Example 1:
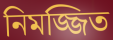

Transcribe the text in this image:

নিমজ্জিত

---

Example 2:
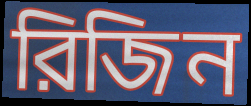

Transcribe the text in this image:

রিজিন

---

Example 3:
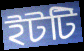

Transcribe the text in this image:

ইটটি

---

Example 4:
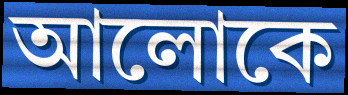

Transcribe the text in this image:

আলোকে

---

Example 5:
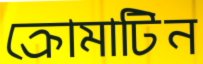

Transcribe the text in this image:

ক্রোমাটিন